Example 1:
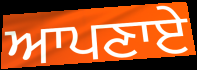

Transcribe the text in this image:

ਆਪਣਾਏ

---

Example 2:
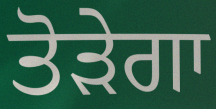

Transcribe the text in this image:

ਤੋੜੇਗਾ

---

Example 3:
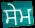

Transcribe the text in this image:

ਸੇਮ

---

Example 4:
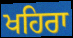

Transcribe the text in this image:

ਖਹਿਰਾ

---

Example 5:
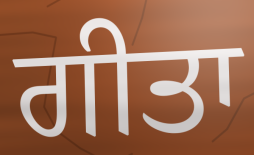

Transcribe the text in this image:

ਗੀਤਾ